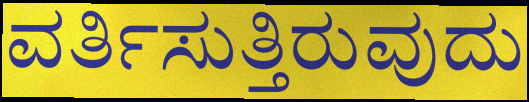
ವರ್ತಿಸುತ್ತಿರುವುದು